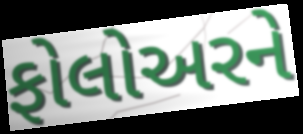
ફોલોઅરને